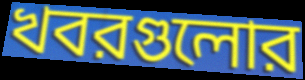
খবরগুলোর